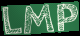
LMP